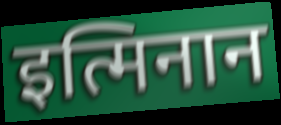
इत्मिनान